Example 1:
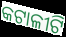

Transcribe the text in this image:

କଟାଳୀଟି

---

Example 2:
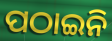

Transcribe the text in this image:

ପଠାଇନି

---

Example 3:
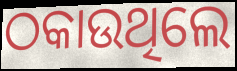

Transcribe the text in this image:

ଠକାଉଥିଲେ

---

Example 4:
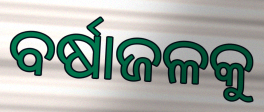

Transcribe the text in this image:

ବର୍ଷାଜଳକୁ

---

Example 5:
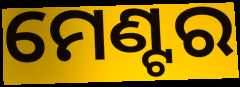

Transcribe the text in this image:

ମେଣ୍ଟର